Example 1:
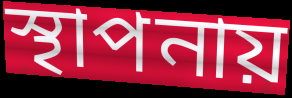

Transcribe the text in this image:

স্থাপনায়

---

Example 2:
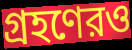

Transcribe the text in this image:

গ্রহণেরও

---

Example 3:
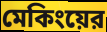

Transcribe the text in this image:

মেকিংয়ের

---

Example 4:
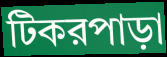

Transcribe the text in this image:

টিকরপাড়া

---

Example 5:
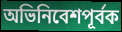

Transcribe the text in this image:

অভিনিবেশপূর্বক